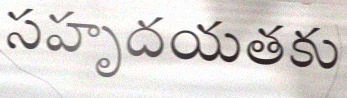
సహృదయతకు